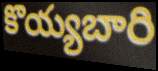
కొయ్యబారి